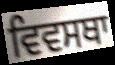
ਵਿਵਸਥਾ